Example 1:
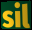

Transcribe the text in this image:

sil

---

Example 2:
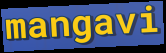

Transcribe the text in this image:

mangavi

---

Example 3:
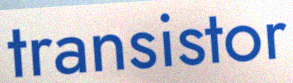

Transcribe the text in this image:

transistor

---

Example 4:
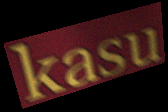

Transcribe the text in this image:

kasu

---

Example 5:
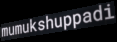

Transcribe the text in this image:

mumukshuppadi